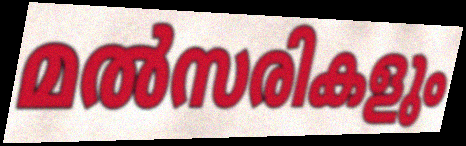
മൽസരികളും